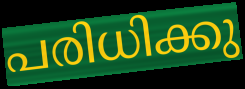
പരിധിക്കു